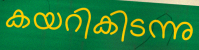
കയറികിടന്നു